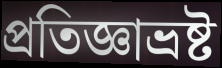
প্রতিজ্ঞাভ্রষ্ট